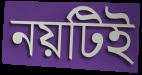
নয়টিই